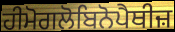
ਹੀਮੋਗਲੋਬਿਨੋਪੈਥੀਜ਼